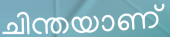
ചിന്തയാണ്